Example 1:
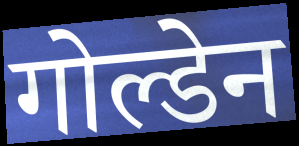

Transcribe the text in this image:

गोल्डेन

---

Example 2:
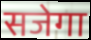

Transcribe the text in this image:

सजेगा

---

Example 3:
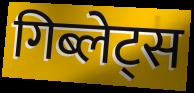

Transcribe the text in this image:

गिब्लेट्स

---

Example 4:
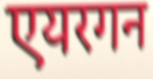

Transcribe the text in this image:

एयरगन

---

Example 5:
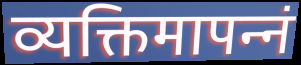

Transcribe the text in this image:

व्यक्तिमापन्नं